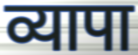
व्यापा